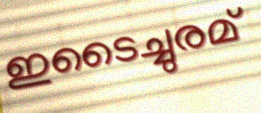
ഇടൈച്ചുരമ്